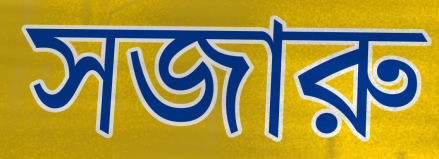
সজারু